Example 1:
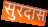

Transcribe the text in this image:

सुरदास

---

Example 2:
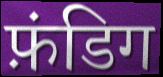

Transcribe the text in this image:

फ़ंडिग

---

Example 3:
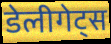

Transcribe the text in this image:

डेलीगेट्स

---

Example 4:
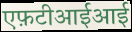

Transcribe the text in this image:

एफ़टीआईआई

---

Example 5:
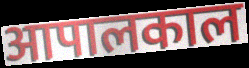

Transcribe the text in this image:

आपालकाल